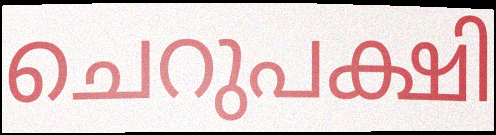
ചെറുപക്ഷി